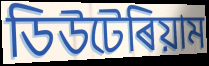
ডিউটেৰিয়াম